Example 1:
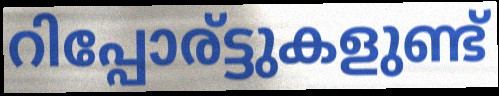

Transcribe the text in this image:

റിപ്പോര്ട്ടുകളുണ്ട്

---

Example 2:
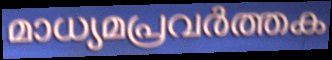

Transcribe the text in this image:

മാധ്യമപ്രവർത്തക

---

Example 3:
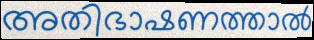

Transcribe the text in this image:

അതിഭാഷണത്താൽ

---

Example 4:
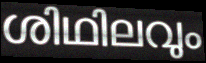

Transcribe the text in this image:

ശിഥിലവും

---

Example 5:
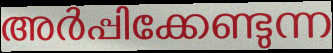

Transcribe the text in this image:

അർപ്പിക്കേണ്ടുന്ന